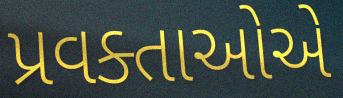
પ્રવક્તાઓએ